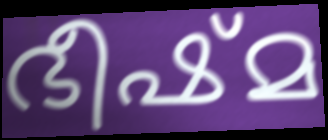
ഭീഷ്മ